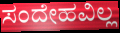
ಸಂದೇಹವಿಲ್ಲ